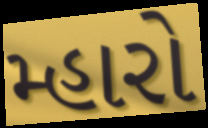
મ્હારો